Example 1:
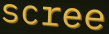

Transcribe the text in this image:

scree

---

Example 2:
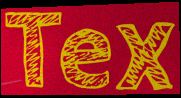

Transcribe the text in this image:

Tex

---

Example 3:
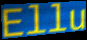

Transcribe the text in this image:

Ellu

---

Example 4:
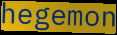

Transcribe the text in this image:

hegemon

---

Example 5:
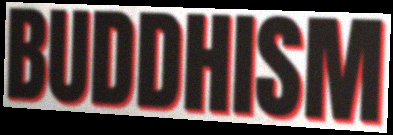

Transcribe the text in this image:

BUDDHISM